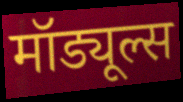
मॉड्यूल्स